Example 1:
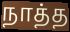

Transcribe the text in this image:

நாத்த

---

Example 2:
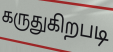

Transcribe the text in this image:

கருதுகிறபடி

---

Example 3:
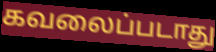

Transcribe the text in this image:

கவலைப்படாது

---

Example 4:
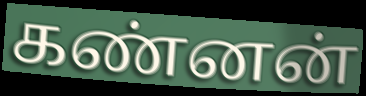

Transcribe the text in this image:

கண்னன்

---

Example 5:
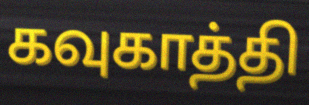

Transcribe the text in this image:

கவுகாத்தி